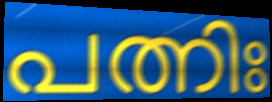
പത്നിഃ